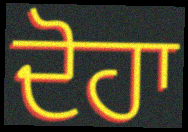
ਦੋਹਾ